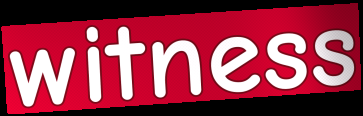
witness